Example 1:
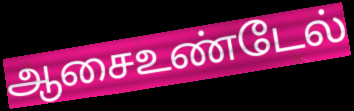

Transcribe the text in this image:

ஆசைஉண்டேல்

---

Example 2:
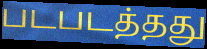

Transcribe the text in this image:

படபடத்தது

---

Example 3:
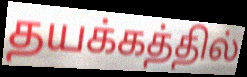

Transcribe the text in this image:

தயக்கத்தில்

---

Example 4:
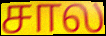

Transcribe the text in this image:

சால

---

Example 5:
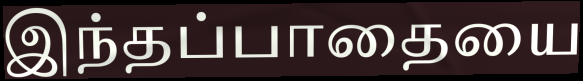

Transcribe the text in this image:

இந்தப்பாதையை